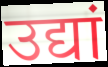
उद्यां